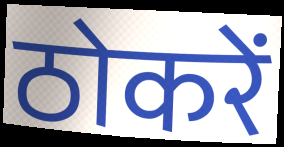
ठोकरें